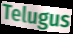
Telugus